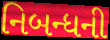
નિબન્ધની